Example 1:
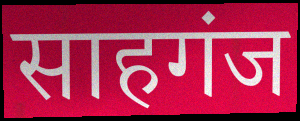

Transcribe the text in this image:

साहगंज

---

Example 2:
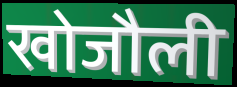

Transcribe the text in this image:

खोजौली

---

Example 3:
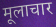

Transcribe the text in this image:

मूलाचार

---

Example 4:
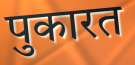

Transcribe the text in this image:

पुकारत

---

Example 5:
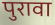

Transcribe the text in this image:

पुरावा